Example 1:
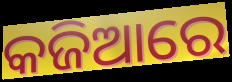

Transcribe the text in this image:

କଜିଆରେ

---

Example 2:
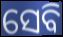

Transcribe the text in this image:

ସେବି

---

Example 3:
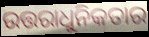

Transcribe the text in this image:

ଉତ୍ତରାଧୁନିକତାର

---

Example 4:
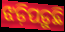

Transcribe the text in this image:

ଝଡ଼ିପଡ଼ୁଛି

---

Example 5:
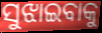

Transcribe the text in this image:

ସୁଝାଇବାକୁ